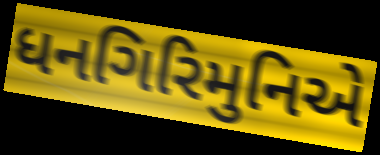
ધનગિરિમુનિએ